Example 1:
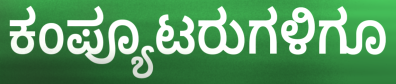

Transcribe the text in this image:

ಕಂಪ್ಯೂಟರುಗಳಿಗೂ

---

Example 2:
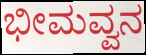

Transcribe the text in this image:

ಭೀಮವ್ವನ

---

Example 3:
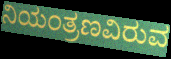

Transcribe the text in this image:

ನಿಯಂತ್ರಣವಿರುವ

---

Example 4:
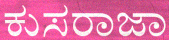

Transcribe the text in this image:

ಕುಸರಾಜಾ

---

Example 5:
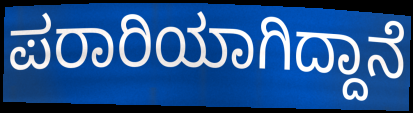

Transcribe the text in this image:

ಪರಾರಿಯಾಗಿದ್ದಾನೆ